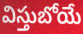
విస్తుబోయే